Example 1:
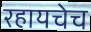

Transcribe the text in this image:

रहायचेच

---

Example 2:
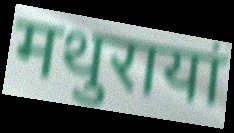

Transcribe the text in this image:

मथुरायां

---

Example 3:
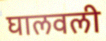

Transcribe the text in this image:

घालवली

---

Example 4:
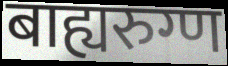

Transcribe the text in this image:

बाह्यरुग्ण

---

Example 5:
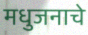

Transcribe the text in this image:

मधुजनाचे